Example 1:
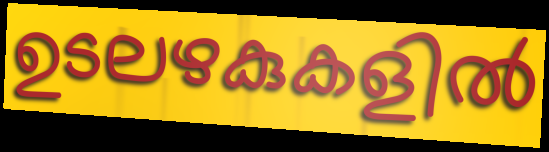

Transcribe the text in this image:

ഉടലഴകുകളിൽ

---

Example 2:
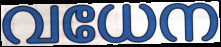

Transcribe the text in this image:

വധേന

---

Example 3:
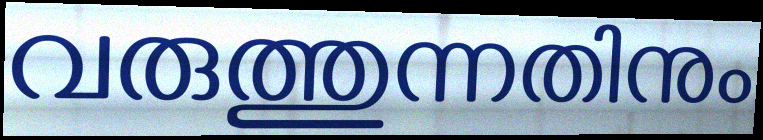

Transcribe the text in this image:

വരുത്തുന്നതിനും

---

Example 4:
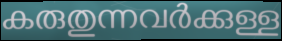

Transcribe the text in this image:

കരുതുന്നവർക്കുള്ള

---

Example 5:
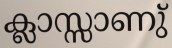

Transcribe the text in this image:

ക്ലാസ്സാണു്